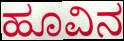
ಹೂವಿನ